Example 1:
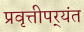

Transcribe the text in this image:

प्रवृत्तीपर्यंत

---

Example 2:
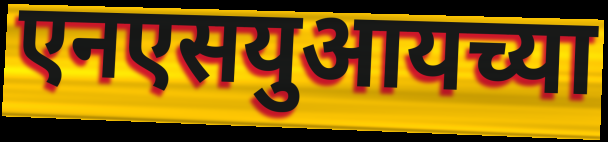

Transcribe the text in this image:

एनएसयुआयच्या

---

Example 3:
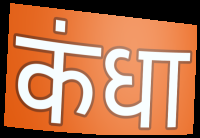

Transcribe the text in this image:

कंधा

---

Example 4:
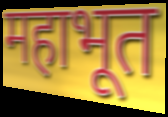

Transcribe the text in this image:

महाभूत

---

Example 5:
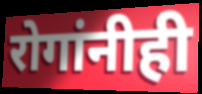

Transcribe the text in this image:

रोगांनीही